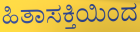
ಹಿತಾಸಕ್ತಿಯಿಂದ